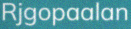
Rjgopaalan